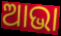
ଆଭା